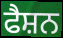
ਫੈਸ਼ਨ